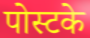
पोस्टके